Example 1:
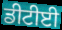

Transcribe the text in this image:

ਡੀਟੀਈ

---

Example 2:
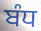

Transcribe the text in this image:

ਬੰਧ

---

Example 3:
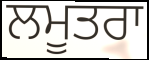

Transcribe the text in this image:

ਲਮੂਤਰਾ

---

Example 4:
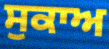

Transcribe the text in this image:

ਸੁਕਾਅ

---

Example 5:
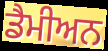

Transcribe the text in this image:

ਡੈਮੀਅਨ